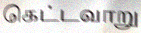
கெட்டவாறு